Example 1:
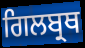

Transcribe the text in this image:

ਗਿਲਬ੍ਰਥ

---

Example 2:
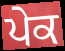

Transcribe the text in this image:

ਪੇਕ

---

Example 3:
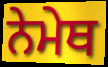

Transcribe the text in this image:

ਨੇਮੇਥ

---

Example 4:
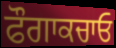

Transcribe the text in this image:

ਫੌਗਾਕਚਾਓ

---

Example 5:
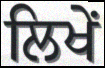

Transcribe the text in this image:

ਲਿਖੇਂ